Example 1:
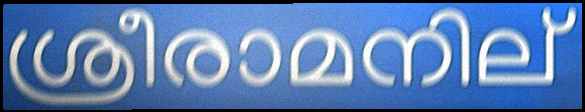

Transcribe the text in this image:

ശ്രീരാമനില്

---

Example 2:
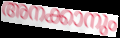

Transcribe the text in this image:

അനക്കാനും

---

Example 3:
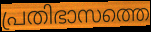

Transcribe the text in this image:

പ്രതിഭാസത്തെ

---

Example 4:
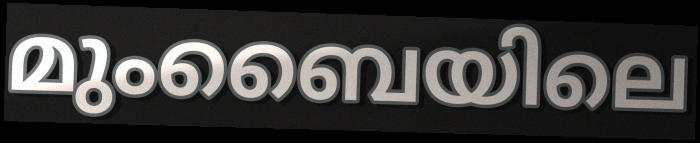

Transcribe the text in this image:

മുംബൈയിലെ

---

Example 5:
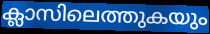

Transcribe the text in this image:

ക്ലാസിലെത്തുകയും